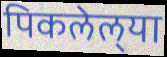
पिकलेल्या